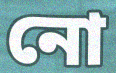
নো